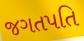
જગતપતિ